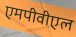
एमपीवीएल